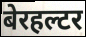
बेरहल्टर